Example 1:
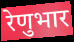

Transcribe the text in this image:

रेणुभार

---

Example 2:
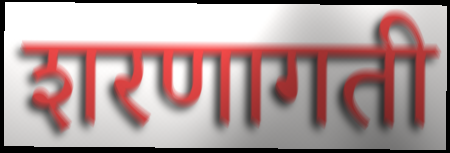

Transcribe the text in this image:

शरणागती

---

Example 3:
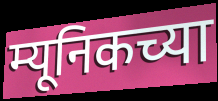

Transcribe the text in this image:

म्यूनिकच्या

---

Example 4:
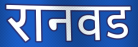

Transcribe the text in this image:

रानवड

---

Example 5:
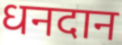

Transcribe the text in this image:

धनदान